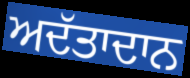
ਅਦੱਤਾਦਾਨ